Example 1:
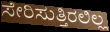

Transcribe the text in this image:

ಸೇರಿಸುತ್ತಿರಲಿಲ್ಲ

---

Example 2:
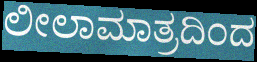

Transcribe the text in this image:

ಲೀಲಾಮಾತ್ರದಿಂದ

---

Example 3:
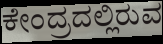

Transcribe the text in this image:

ಕೇಂದ್ರದಲ್ಲಿರುವ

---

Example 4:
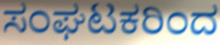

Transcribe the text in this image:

ಸಂಘಟಕರಿಂದ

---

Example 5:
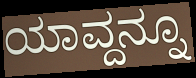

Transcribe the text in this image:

ಯಾವ್ದನ್ನೂ